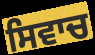
ਸਿਵਾਚ